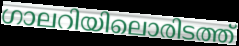
ഗാലറിയിലൊരിടത്ത്